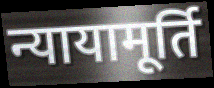
न्यायामूर्ति